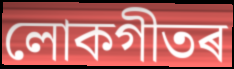
লোকগীতৰ